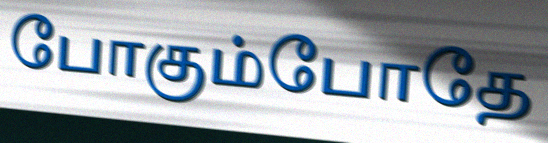
போகும்போதே